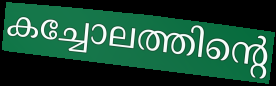
കച്ചോലത്തിന്റെ